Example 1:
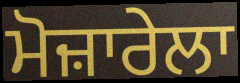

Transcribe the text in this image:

ਮੋਜ਼ਾਰੇਲਾ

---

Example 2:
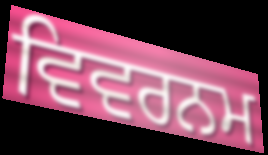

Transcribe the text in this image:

ਵਿਵਰਨਮ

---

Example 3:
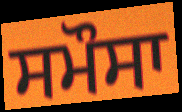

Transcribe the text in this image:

ਸਮੌਸਾ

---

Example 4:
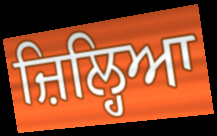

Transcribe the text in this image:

ਜ਼ਿਲ੍ਹਿਆ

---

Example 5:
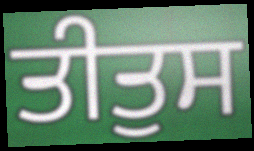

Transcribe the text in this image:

ਤੀਤੁਸ